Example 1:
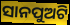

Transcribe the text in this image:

ସାନପୁଅଟି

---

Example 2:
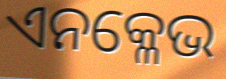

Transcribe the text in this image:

ଏନକ୍ଳେଭ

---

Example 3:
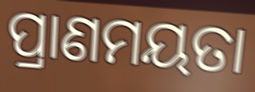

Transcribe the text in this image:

ପ୍ରାଣମୟତା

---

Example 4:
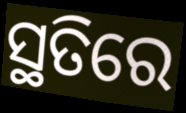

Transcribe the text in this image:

ସ୍ଥତିରେ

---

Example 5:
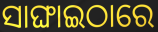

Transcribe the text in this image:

ସାଙ୍ଘାଇଠାରେ